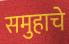
समुहाचे